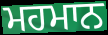
ਮਹਮਾਨ